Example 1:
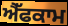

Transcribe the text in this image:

ਐੱਫਕਾਮ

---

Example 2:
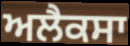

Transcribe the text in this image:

ਅਲੈਕਸਾ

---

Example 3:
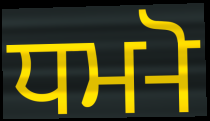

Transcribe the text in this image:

ਧਮ੍ਮੋ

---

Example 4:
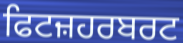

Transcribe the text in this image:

ਫਿਟਜ਼ਹਰਬਰਟ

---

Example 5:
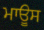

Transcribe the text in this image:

ਮਾਊਸ